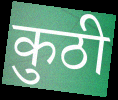
कुठी